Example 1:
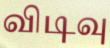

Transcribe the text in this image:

விடிவு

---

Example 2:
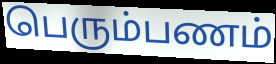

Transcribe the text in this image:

பெரும்பணம்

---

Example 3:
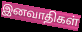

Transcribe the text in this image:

இனவாதிகள்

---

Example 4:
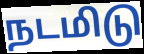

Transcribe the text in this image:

நடமிடு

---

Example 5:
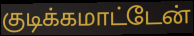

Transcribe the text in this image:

குடிக்கமாட்டேன்